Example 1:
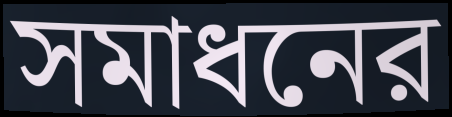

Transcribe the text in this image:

সমাধনের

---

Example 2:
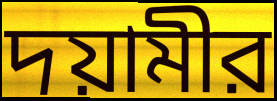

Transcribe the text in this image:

দয়ামীর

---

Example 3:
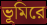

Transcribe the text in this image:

ভূমিরে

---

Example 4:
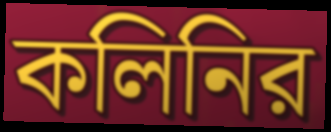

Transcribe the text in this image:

কলিনির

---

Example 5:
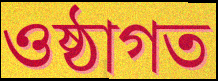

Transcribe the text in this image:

ওষ্ঠাগত